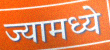
ज्यामध्ये